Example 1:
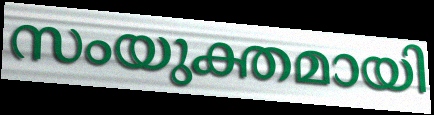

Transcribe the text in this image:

സംയുക്തമായി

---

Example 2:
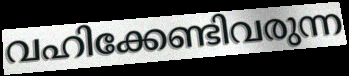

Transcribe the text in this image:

വഹിക്കേണ്ടിവരുന്ന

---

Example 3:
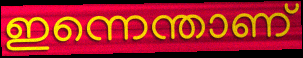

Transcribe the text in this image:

ഇന്നെന്താണ്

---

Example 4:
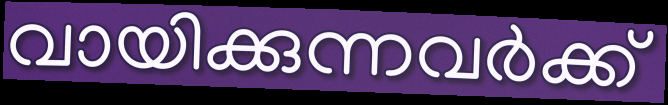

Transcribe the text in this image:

വായിക്കുന്നവർക്ക്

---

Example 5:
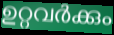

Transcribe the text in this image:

ഉറ്റവർക്കും